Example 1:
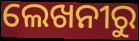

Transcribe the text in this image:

ଲେଖନୀରୁ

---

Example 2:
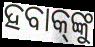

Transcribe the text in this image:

ହବାକ୍‌ଙ୍କୁ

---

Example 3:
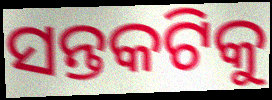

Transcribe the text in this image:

ସନ୍ତକଟିକୁ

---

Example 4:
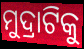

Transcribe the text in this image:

ମୁଦ୍ରାଟିକୁ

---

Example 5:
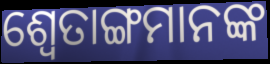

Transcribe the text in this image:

ଶ୍ଵେତାଙ୍ଗମାନଙ୍କ